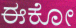
ಈಕೋ